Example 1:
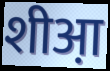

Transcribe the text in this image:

शीआ़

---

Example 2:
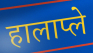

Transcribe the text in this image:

हालाप्ले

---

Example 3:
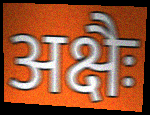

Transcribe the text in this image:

अक्षैः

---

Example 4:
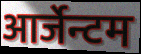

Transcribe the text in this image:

आर्जेन्टम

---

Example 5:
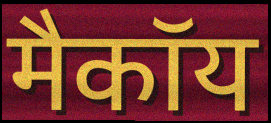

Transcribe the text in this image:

मैकॉय